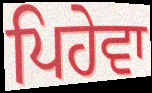
ਪਿਹੇਵਾ